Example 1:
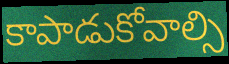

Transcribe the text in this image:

కాపాడుకోవాల్సి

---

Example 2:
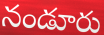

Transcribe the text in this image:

నండూరు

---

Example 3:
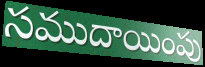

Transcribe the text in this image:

సముదాయింపు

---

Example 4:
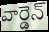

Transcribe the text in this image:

వార్డెన్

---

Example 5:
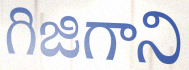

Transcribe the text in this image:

గిజిగాని